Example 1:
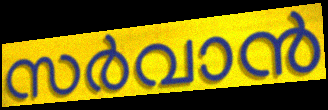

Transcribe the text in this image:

സർവാൻ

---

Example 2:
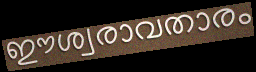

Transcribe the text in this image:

ഈശ്വരാവതാരം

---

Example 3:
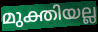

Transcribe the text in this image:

മുക്തിയല്ല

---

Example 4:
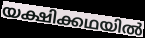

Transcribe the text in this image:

യക്ഷിക്കഥയിൽ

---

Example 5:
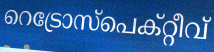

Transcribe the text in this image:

റെട്രോസ്പെക്റ്റീവ്